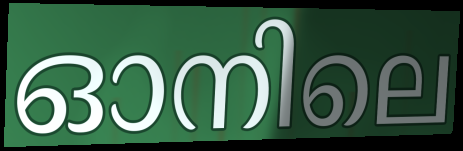
ഓനിലെ